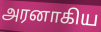
அரனாகிய